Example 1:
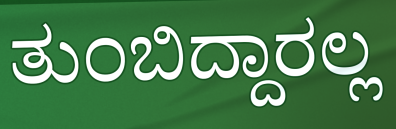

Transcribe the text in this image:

ತುಂಬಿದ್ದಾರಲ್ಲ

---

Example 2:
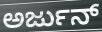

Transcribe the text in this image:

ಅರ್ಜುನ್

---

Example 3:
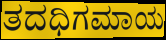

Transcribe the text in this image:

ತದಧಿಗಮಾಯ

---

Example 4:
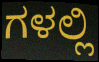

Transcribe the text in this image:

ಗಳಲ್ಲಿ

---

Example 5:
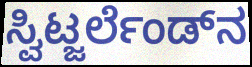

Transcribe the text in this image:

ಸ್ವಿಟ್ಜರ್ಲೆಂಡ್‌ನ